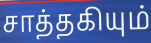
சாத்தகியும்